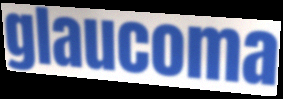
glaucoma